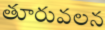
తూరువలన